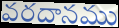
వరదానము